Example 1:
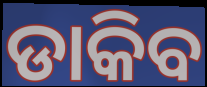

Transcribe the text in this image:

ଡାକିବ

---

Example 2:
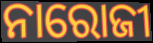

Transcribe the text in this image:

ନାରୋଜୀ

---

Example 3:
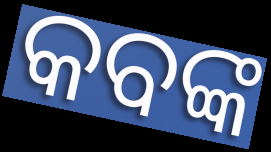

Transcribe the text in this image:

କବଙ୍କ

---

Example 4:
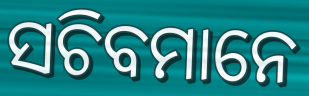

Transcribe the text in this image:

ସଚିବମାନେ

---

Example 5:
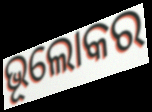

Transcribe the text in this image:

ଭୂଲୋକର